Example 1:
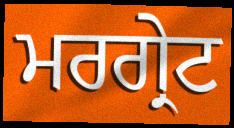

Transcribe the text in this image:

ਮਰਗ੍ਰੇਟ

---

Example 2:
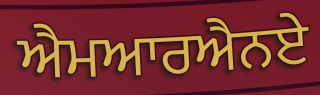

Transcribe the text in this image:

ਐਮਆਰਐਨਏ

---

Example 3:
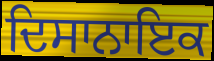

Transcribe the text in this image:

ਦਿਸਾਨਾਇਕ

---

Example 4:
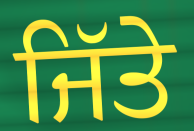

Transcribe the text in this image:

ਜਿੱਤੇ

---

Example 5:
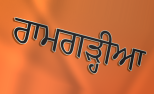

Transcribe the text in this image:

ਰਾਮਗੜ੍ਹੀਆ